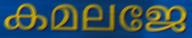
കമലജേ